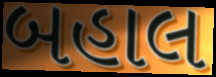
બહાલ